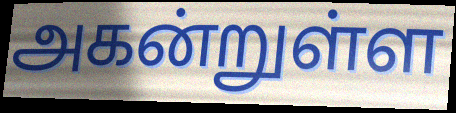
அகன்றுள்ள